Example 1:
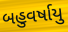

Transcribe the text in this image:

બહુવર્ષાયુ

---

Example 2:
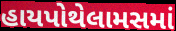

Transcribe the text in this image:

હાયપોથેલામસમાં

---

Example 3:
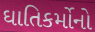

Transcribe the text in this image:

ઘાતિકર્મોનો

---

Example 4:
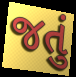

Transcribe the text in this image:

જતું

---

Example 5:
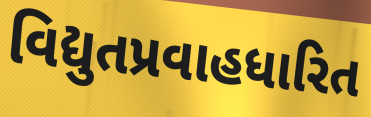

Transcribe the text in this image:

વિદ્યુતપ્રવાહધારિત